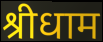
श्रीधाम